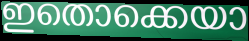
ഇതൊക്കെയാ